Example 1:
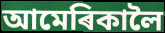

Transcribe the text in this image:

আমেৰিকালৈ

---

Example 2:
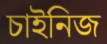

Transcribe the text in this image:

চাইনিজ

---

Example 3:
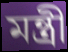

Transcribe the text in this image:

মন্ত্ৰী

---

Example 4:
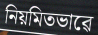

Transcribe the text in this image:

নিয়মিতভাৱে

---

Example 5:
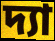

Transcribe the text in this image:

দ্যা